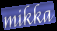
mikka